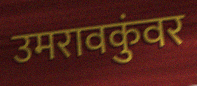
उमरावकुंवर